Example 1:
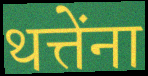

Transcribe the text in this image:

थत्तेंना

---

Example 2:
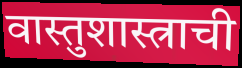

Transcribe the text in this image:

वास्तुशास्त्राची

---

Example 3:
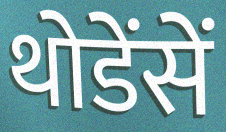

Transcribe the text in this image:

थोडेंसें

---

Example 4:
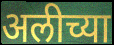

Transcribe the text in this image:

अलीच्या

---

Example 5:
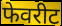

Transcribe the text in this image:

फेवरीट